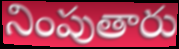
నింపుతారు